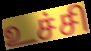
உச்சி